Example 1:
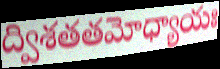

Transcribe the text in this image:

ద్విశతతమోధ్యాయః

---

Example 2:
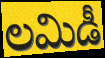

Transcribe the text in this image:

లమిడీ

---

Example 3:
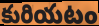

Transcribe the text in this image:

కురియటం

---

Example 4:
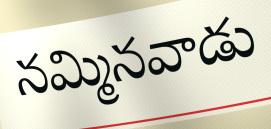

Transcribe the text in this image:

నమ్మినవాడు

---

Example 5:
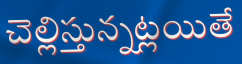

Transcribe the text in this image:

చెల్లిస్తున్నట్లయితే